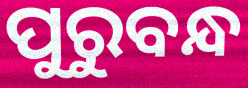
ପୁରୁବନ୍ଧ